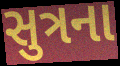
સુત્રના